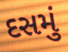
દસમું